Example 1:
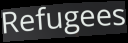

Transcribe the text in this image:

Refugees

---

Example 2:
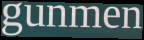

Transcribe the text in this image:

gunmen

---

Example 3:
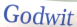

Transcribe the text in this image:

Godwit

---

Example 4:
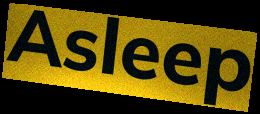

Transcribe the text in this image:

Asleep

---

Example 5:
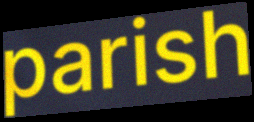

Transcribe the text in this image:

parish